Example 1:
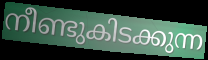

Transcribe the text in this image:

നീണ്ടുകിടക്കുന്ന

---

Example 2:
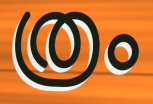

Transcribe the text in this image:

ത്രം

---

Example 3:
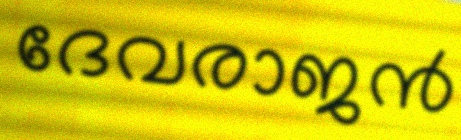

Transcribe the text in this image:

ദേവരാജൻ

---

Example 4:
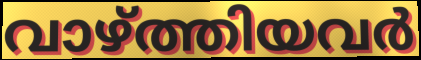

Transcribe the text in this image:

വാഴ്ത്തിയവർ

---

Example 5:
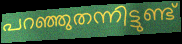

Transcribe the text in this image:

പറഞ്ഞുതന്നിട്ടുണ്ട്